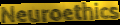
Neuroethics